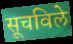
सूचविले